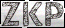
ZKP